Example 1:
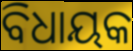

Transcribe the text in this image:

ବିଧାୟକ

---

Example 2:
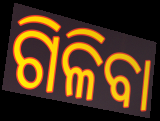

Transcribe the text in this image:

ଗିଳିବା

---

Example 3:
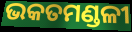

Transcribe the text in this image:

ଭକତମଣ୍ଡଳୀ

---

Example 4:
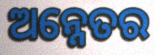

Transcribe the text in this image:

ଅନ୍ନେତର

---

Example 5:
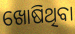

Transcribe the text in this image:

ଖୋଷିଥିବା